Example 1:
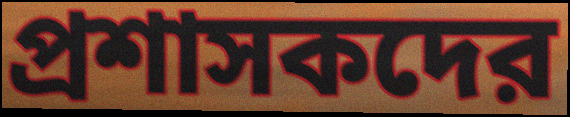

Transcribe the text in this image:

প্রশাসকদের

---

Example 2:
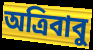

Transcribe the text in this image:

অত্রিবাবু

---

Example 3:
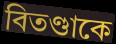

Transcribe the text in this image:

বিতণ্ডাকে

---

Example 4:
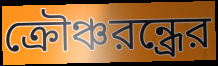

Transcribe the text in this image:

ক্রৌঞ্চরন্ধ্রের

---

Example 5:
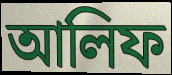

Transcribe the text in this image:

আলিফ